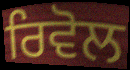
ਰਿਵੋਲ